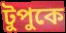
টুপুকে